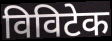
विविटेक